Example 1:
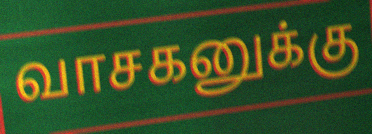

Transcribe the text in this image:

வாசகனுக்கு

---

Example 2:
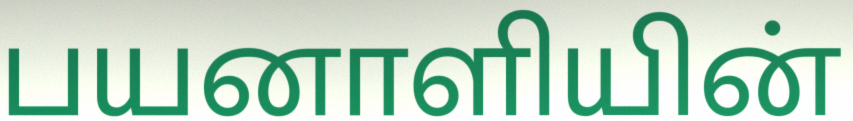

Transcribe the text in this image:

பயனாளியின்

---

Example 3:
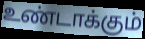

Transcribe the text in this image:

உண்டாக்கும்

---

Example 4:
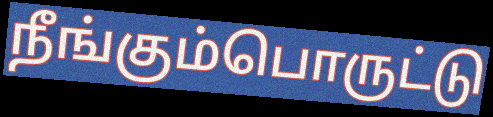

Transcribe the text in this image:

நீங்கும்பொருட்டு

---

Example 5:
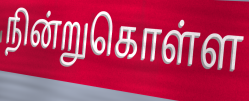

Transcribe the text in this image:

நின்றுகொள்ள